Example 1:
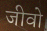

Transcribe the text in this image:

जीवो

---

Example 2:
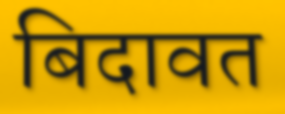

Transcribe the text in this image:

बिदावत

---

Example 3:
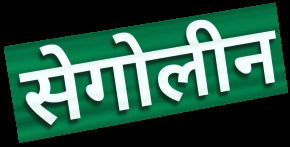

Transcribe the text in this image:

सेगोलीन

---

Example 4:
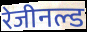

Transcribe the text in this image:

रेजीनल्ड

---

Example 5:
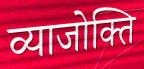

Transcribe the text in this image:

व्याजोक्ति